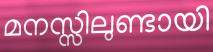
മനസ്സിലുണ്ടായി